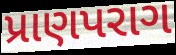
પ્રાણપરાગ